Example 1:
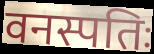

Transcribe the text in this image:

वनस्पतिः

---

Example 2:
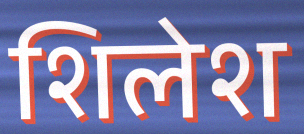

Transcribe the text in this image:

शिलेश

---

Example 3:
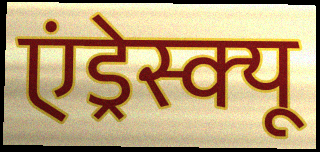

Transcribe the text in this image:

एंड्रेस्क्यू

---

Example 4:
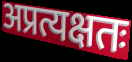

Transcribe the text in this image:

अप्रत्यक्षतः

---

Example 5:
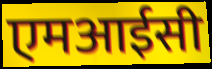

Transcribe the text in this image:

एमआईसी